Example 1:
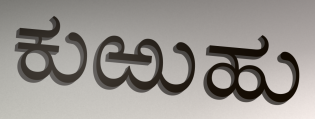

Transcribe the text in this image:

ಕುಱುಹು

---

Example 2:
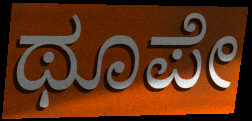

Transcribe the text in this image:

ಥೂಪೇ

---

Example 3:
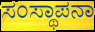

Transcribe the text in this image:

ಸಂಸ್ಥಾಪನಾ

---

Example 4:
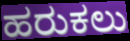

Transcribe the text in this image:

ಹರುಕಲು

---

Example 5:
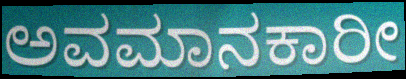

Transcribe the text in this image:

ಅವಮಾನಕಾರೀ